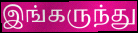
இங்கருந்து